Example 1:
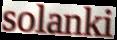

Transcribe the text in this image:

solanki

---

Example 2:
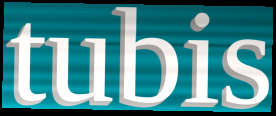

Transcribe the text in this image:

tubis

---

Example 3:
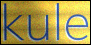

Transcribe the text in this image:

kule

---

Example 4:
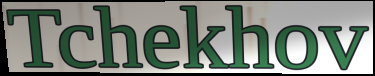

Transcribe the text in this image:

Tchekhov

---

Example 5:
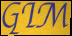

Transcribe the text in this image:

GIM